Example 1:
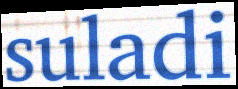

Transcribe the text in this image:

suladi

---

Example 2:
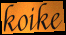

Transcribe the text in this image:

koike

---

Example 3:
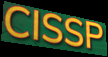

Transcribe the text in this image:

CISSP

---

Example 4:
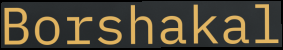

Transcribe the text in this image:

Borshakal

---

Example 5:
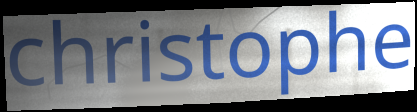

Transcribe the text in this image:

christophe